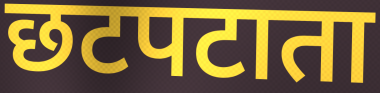
छटपटाता